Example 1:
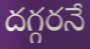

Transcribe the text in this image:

దగ్గరనే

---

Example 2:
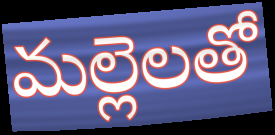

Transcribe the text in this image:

మల్లెలతో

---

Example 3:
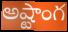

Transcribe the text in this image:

అష్టాంగ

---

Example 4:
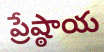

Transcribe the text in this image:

ప్రేష్ఠాయ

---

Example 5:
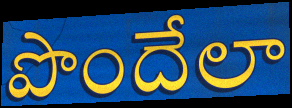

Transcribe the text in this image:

పొందేలా